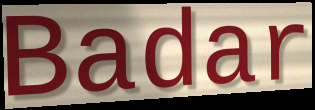
Badar